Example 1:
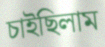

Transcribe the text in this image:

চাইছিলাম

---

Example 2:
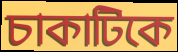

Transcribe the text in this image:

চাকাটিকে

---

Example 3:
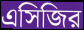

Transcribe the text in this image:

এসিজির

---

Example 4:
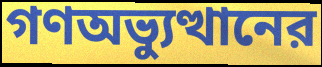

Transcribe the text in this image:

গণঅভ্যুত্থানের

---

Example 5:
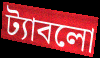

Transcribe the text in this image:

ট্যাবলো